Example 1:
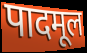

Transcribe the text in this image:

पादमूल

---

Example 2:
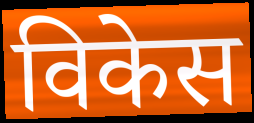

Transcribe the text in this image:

विकेस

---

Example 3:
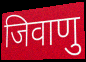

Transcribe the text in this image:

जिवाणु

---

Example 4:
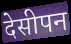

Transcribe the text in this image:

देसीपन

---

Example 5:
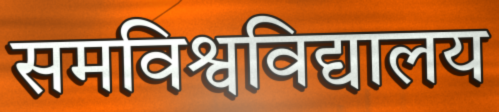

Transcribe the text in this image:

समविश्वविद्यालय